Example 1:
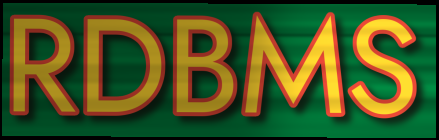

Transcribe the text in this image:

RDBMS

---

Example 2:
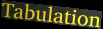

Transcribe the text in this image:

Tabulation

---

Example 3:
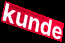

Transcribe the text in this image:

kunde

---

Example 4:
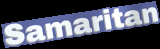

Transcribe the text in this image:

Samaritan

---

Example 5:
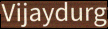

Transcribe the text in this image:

Vijaydurg